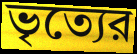
ভৃত্যের